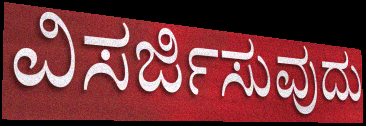
ವಿಸರ್ಜಿಸುವುದು